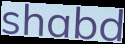
shabd